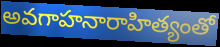
అవగాహనారాహిత్యంతో